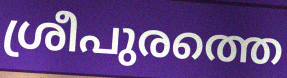
ശ്രീപുരത്തെ